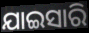
ଯାଇସାରି